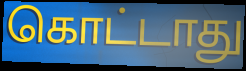
கொட்டாது